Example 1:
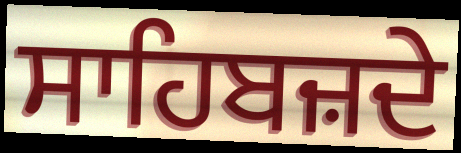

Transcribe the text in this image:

ਸਾਹਿਬਜ਼ਦੇ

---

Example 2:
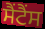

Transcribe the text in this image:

ਸੈਂਟੈਂਸ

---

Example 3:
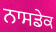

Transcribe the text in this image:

ਨਾਸਡੇਕ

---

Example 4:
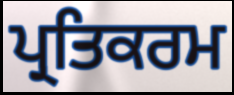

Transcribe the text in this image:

ਪ੍ਰਤਿਕਰਮ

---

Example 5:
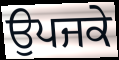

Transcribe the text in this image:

ਉਪਜਕੇ